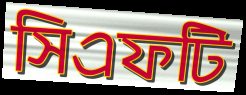
সিএফটি